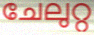
ചേലുറ്റ